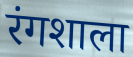
रंगशाला